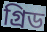
গ্রিড